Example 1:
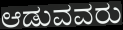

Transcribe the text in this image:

ಆಡುವವರು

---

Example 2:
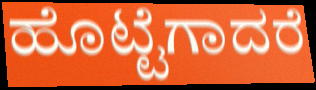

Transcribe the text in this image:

ಹೊಟ್ಟೆಗಾದರೆ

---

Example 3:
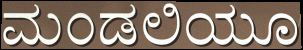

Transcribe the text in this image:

ಮಂಡಲಿಯೂ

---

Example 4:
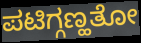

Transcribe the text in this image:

ಪಟಿಗ್ಗಣ್ಹತೋ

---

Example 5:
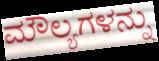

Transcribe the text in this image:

ಮೌಲ್ಯಗಳನ್ನು